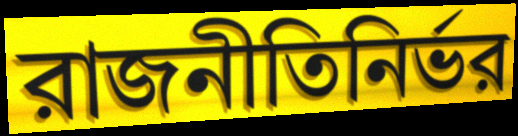
রাজনীতিনির্ভর